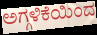
ಅಗ್ಗಳಿಕೆಯಿಂದ